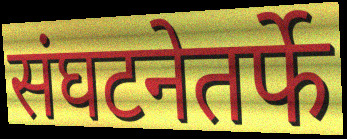
संघटनेतर्फे